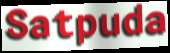
Satpuda